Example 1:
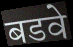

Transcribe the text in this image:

बडवे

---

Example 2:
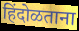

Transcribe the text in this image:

हिंदोळताना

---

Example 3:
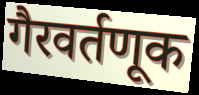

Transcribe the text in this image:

गैरवर्तणूक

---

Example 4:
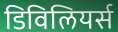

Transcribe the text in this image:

डिविलियर्स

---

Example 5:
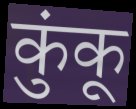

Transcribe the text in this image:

कुंकू